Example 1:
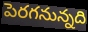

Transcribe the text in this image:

పెరగనున్నది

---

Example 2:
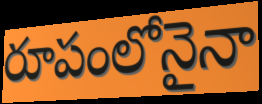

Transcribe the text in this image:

రూపంలోనైనా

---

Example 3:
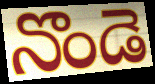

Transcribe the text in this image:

నొండె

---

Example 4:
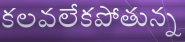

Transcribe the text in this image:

కలవలేకపోతున్న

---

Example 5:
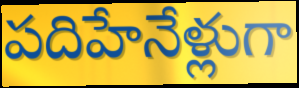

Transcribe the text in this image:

పదిహేనేళ్లుగా